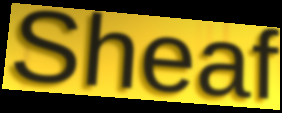
Sheaf